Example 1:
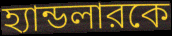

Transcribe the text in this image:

হ্যান্ডলারকে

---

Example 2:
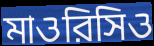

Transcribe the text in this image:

মাওরিসিও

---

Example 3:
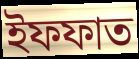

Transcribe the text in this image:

ইফফাত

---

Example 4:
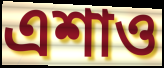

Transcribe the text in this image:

এশাও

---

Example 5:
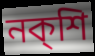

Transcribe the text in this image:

নক্‌শি